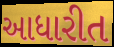
આધારીત